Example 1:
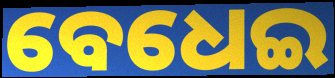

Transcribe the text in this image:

ବେଧେଇ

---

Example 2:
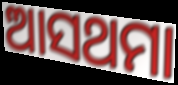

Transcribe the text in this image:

ଆସଥମା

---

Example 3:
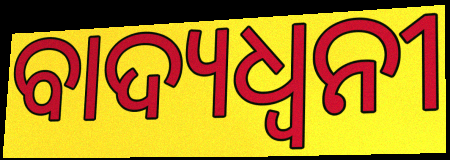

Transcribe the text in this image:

ବାଦ୍ୟଧ୍ୱନୀ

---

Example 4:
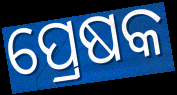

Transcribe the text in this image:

ପ୍ରେଷକ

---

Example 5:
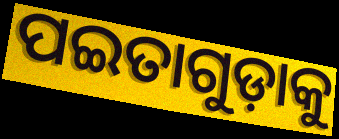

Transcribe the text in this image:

ପଇତାଗୁଡ଼ାକୁ